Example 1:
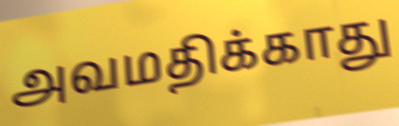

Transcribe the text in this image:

அவமதிக்காது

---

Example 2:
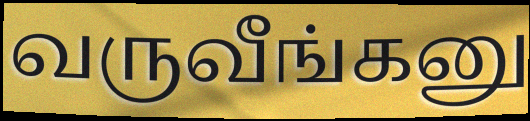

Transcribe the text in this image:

வருவீங்கனு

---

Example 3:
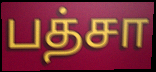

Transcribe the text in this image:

பத்சா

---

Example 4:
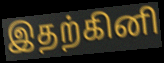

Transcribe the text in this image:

இதற்கினி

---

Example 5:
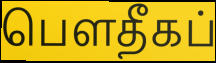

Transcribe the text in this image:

பௌதீகப்